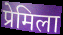
प्रेमिला